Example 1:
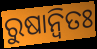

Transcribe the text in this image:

ରୁଷାନ୍ଵିତଃ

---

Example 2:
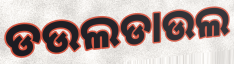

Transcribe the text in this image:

ଡଉଲଡାଉଲ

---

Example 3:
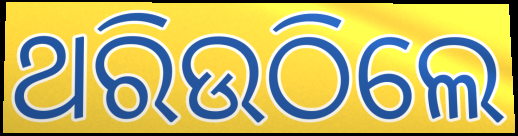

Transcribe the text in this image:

ଥରିଉଠିଲେ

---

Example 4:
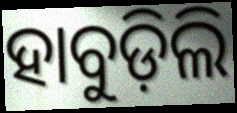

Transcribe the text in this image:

ହାବୁଡ଼ିଲି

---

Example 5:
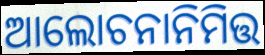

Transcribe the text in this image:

ଆଲୋଚନାନିମିତ୍ତ